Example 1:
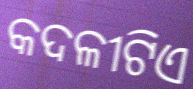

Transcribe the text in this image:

କଦଳୀଟିଏ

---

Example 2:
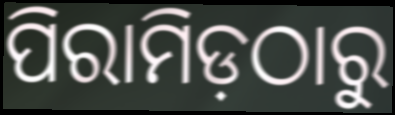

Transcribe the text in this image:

ପିରାମିଡ଼ଠାରୁ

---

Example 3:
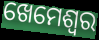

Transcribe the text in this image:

ଖେମେଶ୍ଵର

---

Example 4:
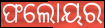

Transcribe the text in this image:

ଫଲୋୟର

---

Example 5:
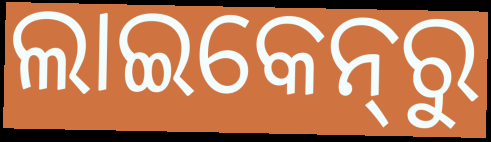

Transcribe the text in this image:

ଲାଇକେନ୍‌ରୁ